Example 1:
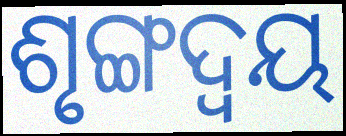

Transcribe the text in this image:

ଶୃଙ୍ଗଦ୍ୱୟ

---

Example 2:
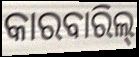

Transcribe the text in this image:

କାରବାରିଲ୍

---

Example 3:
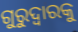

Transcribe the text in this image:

ଗୁରୁଦ୍ୱାରକୁ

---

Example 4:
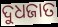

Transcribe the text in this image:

ଦୁଧଜାତ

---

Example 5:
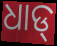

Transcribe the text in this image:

ଧାଡ୍